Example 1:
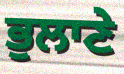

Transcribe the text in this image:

ਭੁਲਾਣੇ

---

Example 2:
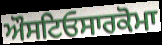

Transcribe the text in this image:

ਔਸਟਿਓਸਾਰਕੋਮਾ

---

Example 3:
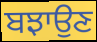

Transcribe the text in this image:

ਬਝਾਉਣ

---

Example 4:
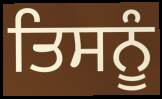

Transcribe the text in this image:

ਤਿਸਨੂੰ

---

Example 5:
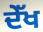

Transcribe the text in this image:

ਦੇੱਖ